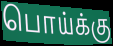
பொய்க்கு